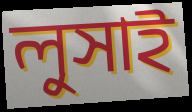
লুসাই